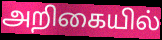
அறிகையில்